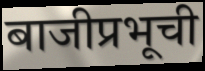
बाजीप्रभूची